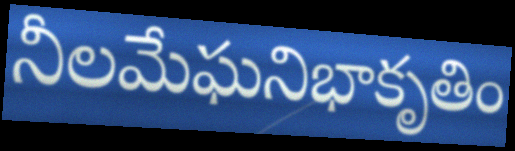
నీలమేఘనిభాకృతిం